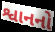
શ્વાનનો